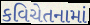
કવિચેતનામાં